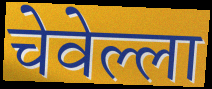
चेवेल्ला